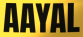
AAYAL